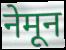
नेमून